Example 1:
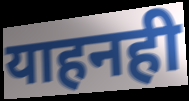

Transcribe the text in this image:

याहनही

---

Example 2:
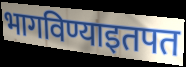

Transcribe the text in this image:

भागविण्याइतपत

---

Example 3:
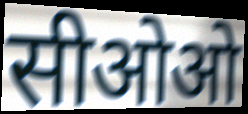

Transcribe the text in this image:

सीओओ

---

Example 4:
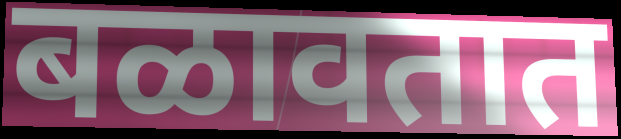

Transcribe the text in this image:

बळावतात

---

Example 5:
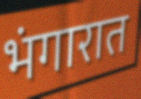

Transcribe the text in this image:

भंगारात